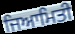
ਜਿਆਮਿਤੀ